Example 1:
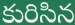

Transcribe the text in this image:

కురిసిన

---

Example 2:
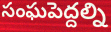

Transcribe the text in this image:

సంఘపెద్దల్ని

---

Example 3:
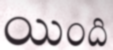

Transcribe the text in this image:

యింది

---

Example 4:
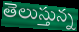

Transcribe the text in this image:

తెలుస్తున్న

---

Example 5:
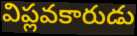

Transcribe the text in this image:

విప్లవకారుడు